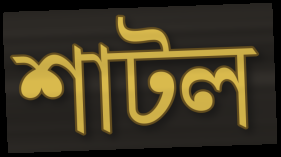
শাটল